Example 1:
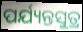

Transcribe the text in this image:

ପର୍ଯ୍ୟନ୍ତସୁତ୍ର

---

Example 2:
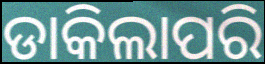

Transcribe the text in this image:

ଡାକିଲାପରି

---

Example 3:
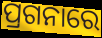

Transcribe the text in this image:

ପ୍ରଗନାରେ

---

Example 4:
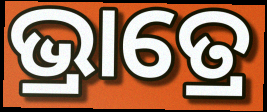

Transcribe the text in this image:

ଭ୍ରାତ୍ରେ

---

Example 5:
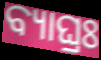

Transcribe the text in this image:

ବ୍ୟାଘ୍ରଃ